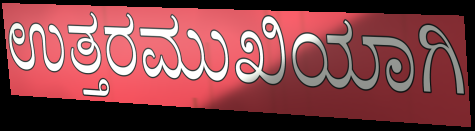
ಉತ್ತರಮುಖಿಯಾಗಿ